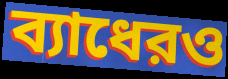
ব্যাধেরও